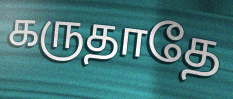
கருதாதே